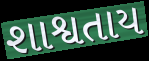
શાશ્વતાય